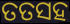
ତତସହ